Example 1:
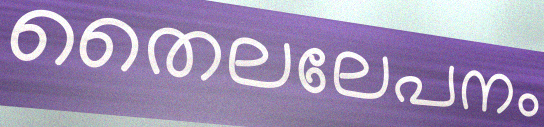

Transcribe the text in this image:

തൈലലേപനം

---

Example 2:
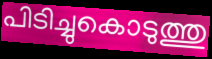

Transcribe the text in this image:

പിടിച്ചുകൊടുത്തു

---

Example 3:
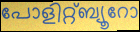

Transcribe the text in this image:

പോളിറ്റ്ബ്യൂറോ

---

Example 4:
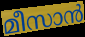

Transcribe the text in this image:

മീസാൻ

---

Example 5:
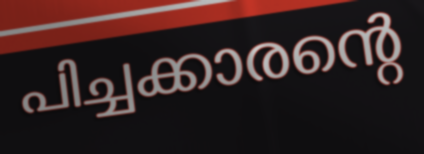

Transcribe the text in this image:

പിച്ചക്കാരന്റെ